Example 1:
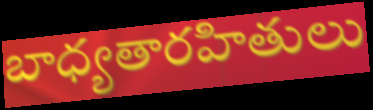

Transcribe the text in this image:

బాధ్యతారహితులు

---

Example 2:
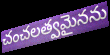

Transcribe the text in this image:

చంచలత్వమైనను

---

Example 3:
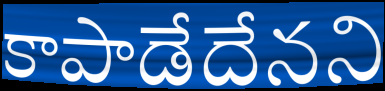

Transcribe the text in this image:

కాపాడేదేనని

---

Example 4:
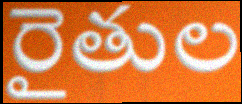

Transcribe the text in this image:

రైతుల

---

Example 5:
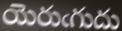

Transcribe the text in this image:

యెరుఁగుదు